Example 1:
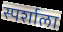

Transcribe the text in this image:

स्पर्शाला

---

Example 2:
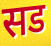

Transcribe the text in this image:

सड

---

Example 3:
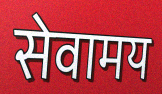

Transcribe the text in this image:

सेवामय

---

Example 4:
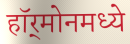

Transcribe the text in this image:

हॉर्मोनमध्ये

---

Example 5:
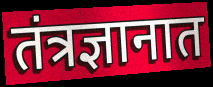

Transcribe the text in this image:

तंत्रज्ञानात